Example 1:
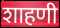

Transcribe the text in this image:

शाहणी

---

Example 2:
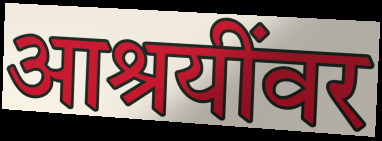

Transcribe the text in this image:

आश्रयींवर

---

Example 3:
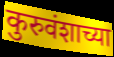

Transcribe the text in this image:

कुरुवंशाच्या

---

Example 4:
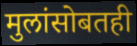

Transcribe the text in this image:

मुलांसोबतही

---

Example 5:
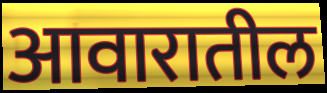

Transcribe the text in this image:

आवारातील